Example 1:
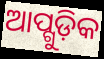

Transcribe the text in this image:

ଆପ୍ଗୁଡ଼ିକ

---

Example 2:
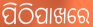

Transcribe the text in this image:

ପିଠିପାଖରେ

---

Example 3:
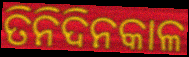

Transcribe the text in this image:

ତିନିଦିନକାଳ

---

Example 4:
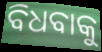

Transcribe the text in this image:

ବିଧବାକୁ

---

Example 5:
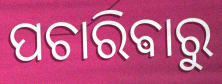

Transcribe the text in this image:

ପଚାରିଵାରୁ